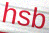
hsb